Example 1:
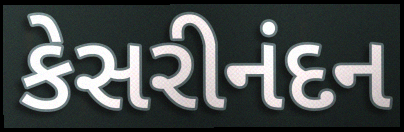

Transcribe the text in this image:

કેસરીનંદન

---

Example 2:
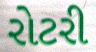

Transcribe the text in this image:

રોટરી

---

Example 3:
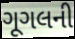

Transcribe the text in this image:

ગૂગલની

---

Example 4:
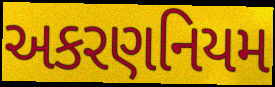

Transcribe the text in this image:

અકરણનિયમ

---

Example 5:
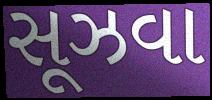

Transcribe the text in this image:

સૂઝવા